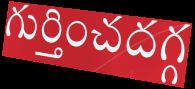
గుర్తించదగ్గ